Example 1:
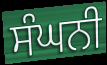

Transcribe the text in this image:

ਸੰਘਨੀ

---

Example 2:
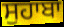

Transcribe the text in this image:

ਸੁਹਾਬਾ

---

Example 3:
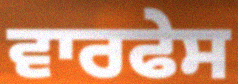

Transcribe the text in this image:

ਵਾਰਫੇਸ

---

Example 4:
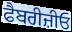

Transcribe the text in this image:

ਫੈਬਰੀਜ਼ੀਓ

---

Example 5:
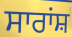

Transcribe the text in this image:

ਸਾਰਾਂਸ਼